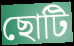
ছোটি